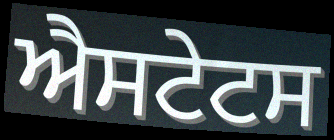
ਐਸਟੇਟਸ